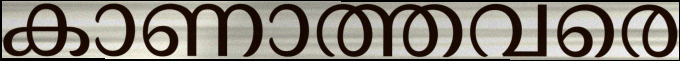
കാണാത്തവരെ